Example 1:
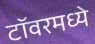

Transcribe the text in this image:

टॉवरमध्ये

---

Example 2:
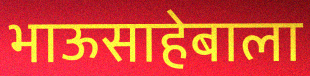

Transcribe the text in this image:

भाऊसाहेबाला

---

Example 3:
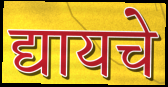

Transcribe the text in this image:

द्यायचे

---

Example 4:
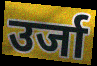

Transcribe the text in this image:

उर्जा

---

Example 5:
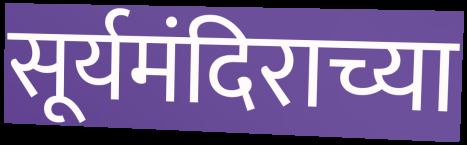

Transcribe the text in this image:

सूर्यमंदिराच्या